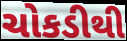
ચોકડીથી